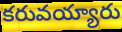
కరువయ్యారు